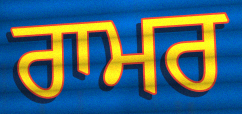
ਰਾਮਰ